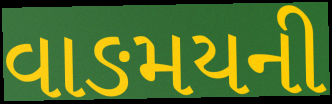
વાઙમયની